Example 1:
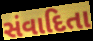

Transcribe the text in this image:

સંવાદિતા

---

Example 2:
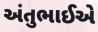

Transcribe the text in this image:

અંતુભાઈએ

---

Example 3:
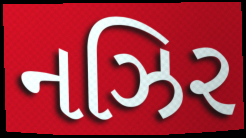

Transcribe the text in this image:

નઝિર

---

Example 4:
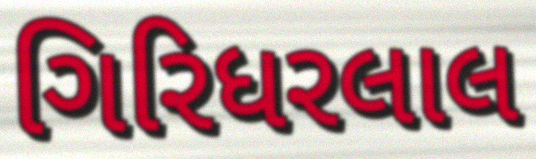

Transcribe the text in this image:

ગિરિધરલાલ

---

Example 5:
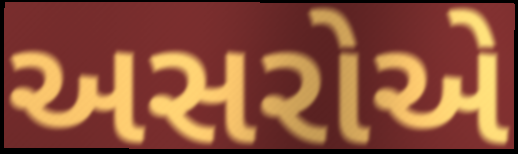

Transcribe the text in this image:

અસરોએ